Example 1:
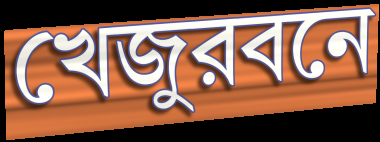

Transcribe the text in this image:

খেজুরবনে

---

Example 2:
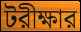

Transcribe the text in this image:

টরীক্ষার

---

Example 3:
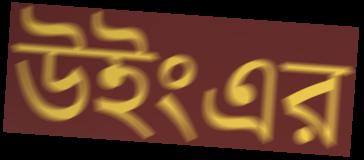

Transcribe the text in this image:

উইংএর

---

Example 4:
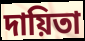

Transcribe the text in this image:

দায়িতা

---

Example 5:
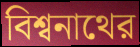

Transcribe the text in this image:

বিশ্বনাথের